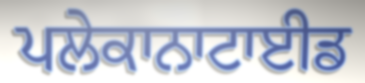
ਪਲੇਕਾਨਾਟਾਈਡ